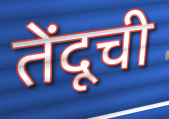
तेंदूची